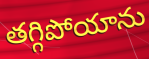
తగ్గిపోయాను